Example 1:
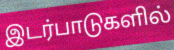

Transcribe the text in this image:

இடர்பாடுகளில்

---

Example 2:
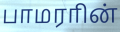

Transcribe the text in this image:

பாமரரின்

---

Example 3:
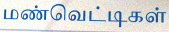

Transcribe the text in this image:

மண்வெட்டிகள்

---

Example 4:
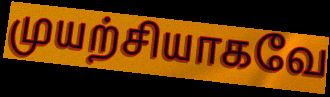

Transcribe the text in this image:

முயற்சியாகவே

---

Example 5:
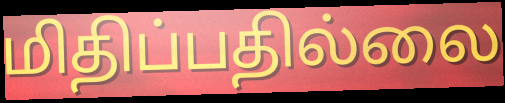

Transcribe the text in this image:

மிதிப்பதில்லை